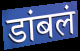
डांबलं